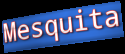
Mesquita